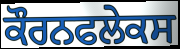
ਕੌਰਨਫਲੇਕਸ